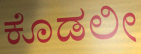
ಕೊಡಲೀ